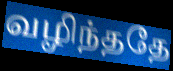
வழிந்ததே